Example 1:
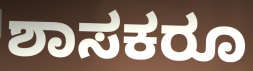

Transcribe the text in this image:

ಶಾಸಕರೂ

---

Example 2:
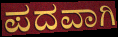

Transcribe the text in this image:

ಪದವಾಗಿ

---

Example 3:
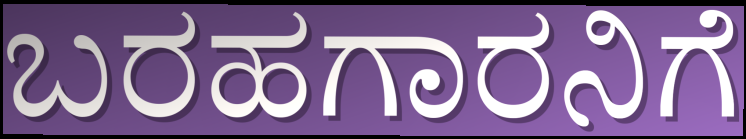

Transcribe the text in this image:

ಬರಹಗಾರನಿಗೆ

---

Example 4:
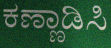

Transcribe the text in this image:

ಕಣ್ಣಾಡಿಸಿ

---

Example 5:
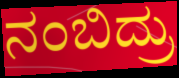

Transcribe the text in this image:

ನಂಬಿದ್ರು